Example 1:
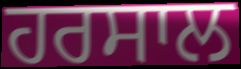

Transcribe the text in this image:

ਹਰਸਾਲ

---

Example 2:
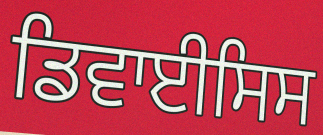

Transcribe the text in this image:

ਡਿਵਾਈਸਿਸ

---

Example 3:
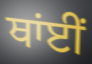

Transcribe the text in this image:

ਥਾਂਈਂ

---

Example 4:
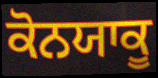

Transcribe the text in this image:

ਕੋਨਯਾਕੂ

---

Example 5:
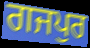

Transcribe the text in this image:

ਗਜਪੁਰ